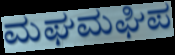
ಮಘಮಘಿಪ